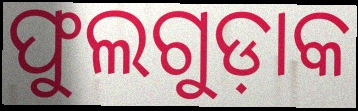
ଫୁଲଗୁଡ଼ାକ